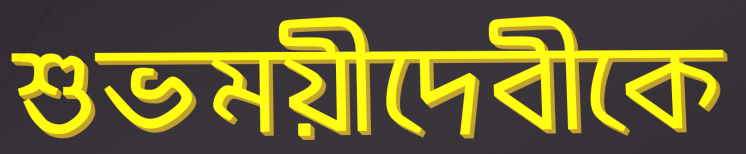
শুভময়ীদেবীকে